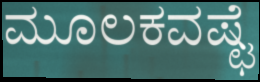
ಮೂಲಕವಷ್ಟೆ